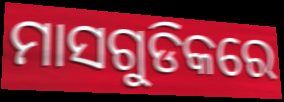
ମାସଗୁଡିକରେ